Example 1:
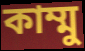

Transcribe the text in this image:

কাম্মু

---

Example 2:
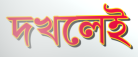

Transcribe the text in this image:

দখলেই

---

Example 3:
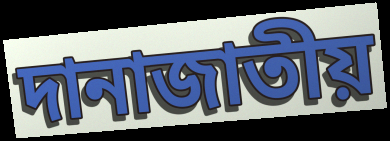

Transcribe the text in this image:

দানাজাতীয়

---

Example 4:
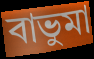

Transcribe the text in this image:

বাভুমা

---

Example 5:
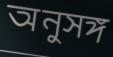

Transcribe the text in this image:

অনুসঙ্গ